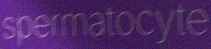
spermatocyte